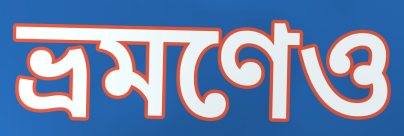
ভ্রমণেও